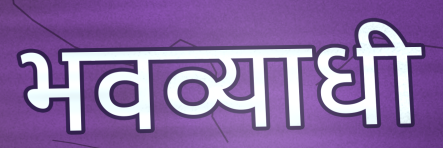
भवव्याधी